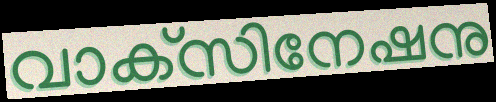
വാക്‌സിനേഷനു